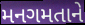
મનગમતાને